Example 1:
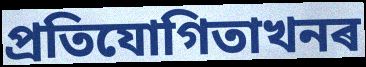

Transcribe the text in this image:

প্ৰতিযোগিতাখনৰ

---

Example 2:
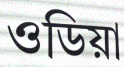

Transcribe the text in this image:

ওডিয়া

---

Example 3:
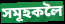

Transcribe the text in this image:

সমূহকলৈ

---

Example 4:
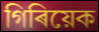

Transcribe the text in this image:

গিৰিয়েক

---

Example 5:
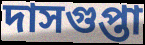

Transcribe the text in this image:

দাসগুপ্তা